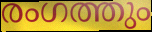
രംഗത്തും